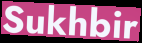
Sukhbir